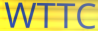
WTTC